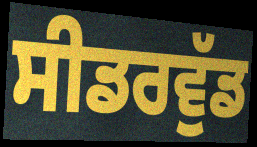
ਸੀਡਰਵੁੱਡ